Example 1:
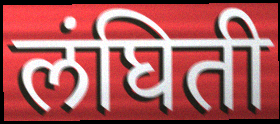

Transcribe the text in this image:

लंघिती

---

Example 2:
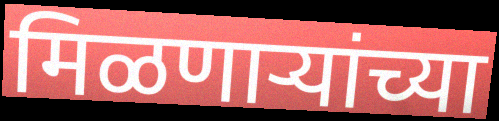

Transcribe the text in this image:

मिळणाऱ्यांच्या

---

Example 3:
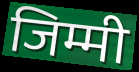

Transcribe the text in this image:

जिम्मी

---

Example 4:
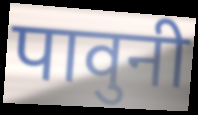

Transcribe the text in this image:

पावुनी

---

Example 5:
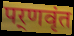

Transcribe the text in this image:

पर्णवृंत